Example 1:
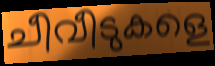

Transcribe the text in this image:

ചീവീടുകളെ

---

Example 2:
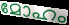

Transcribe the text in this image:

മോഹം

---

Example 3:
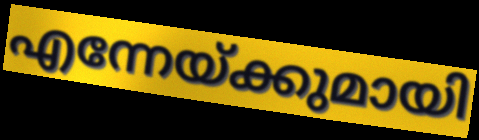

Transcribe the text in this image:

എന്നേയ്ക്കുമായി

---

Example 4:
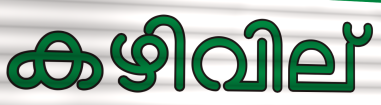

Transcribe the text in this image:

കഴിവില്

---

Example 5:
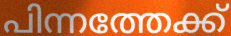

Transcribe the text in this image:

പിന്നത്തേക്ക്